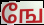
ஙே